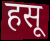
हसू